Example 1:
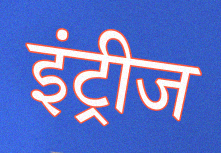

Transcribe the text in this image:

इंट्रीज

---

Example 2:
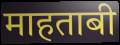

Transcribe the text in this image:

माहताबी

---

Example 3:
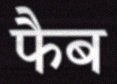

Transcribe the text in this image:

फैब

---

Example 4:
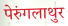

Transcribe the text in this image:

पेरुंगलाथुर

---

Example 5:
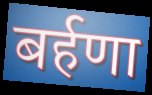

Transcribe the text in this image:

बर्हणा